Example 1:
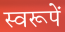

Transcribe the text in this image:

स्वरूपें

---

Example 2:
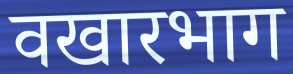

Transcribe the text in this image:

वखारभाग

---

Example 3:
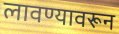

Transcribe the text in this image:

लावण्यावरून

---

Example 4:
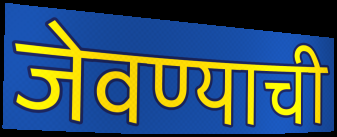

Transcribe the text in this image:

जेवण्याची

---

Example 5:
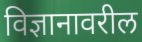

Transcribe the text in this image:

विज्ञानावरील